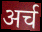
अर्च